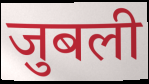
जुबली